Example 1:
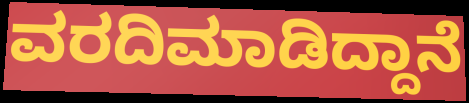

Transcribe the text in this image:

ವರದಿಮಾಡಿದ್ದಾನೆ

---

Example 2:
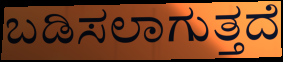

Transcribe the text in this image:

ಬಡಿಸಲಾಗುತ್ತದೆ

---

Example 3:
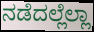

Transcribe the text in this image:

ನಡೆದಲ್ಲೆಲ್ಲಾ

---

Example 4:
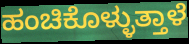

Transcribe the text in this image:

ಹಂಚಿಕೊಳ್ಳುತ್ತಾಳೆ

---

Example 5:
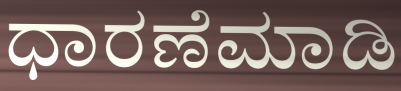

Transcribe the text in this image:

ಧಾರಣೆಮಾಡಿ